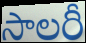
సాలరీ